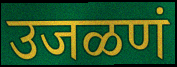
उजळणं